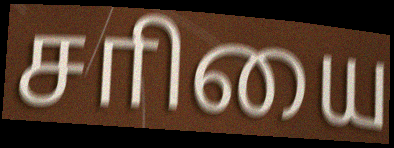
சரியை